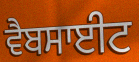
ਵੈਬਸਾਈਟ